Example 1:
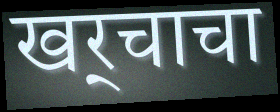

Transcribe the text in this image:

खर्चाचा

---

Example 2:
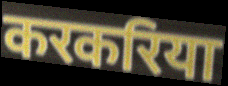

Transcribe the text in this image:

करकरिया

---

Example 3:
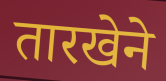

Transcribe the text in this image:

तारखेने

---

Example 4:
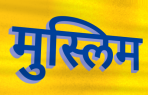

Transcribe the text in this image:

मुस्लिम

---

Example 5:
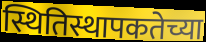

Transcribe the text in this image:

स्थितिस्थापकतेच्या